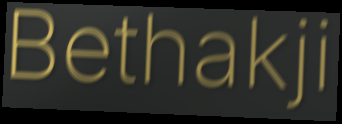
Bethakji